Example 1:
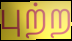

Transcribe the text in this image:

புற்ற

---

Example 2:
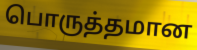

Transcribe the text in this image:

பொருத்தமான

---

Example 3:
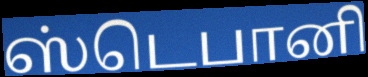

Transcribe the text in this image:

ஸ்டெபானி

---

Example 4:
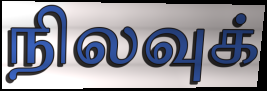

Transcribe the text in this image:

நிலவுக்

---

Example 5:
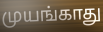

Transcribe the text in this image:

முயங்காது